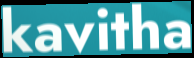
kavitha